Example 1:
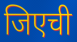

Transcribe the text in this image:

जिएची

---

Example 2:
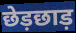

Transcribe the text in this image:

छेड़छाड़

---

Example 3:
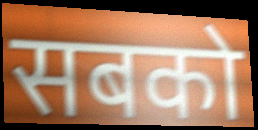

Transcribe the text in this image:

सबको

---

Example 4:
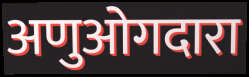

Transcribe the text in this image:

अणुओगदारा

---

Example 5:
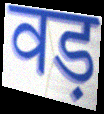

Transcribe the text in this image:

वड़